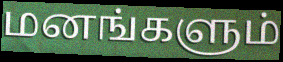
மனங்களும்